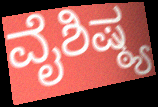
ವೈಶಿಷ್ಠ್ಯ